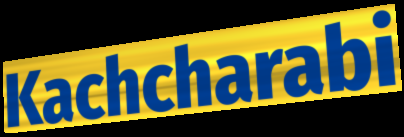
Kachcharabi